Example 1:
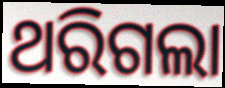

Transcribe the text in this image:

ଥରିଗଲା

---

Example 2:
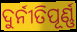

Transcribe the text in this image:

ଦୁର୍ନୀତିପୂର୍ଣ୍ଣ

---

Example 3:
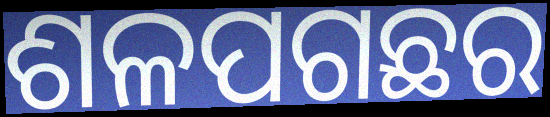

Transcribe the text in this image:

ଶଳପଗଛର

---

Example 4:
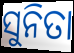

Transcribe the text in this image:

ସୁନିତା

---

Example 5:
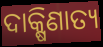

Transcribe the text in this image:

ଦାକ୍ଷିଣାତ୍ୟ